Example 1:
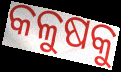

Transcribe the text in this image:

କଳୁଷକୁ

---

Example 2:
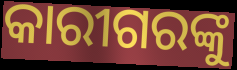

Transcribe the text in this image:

କାରୀଗରଙ୍କୁ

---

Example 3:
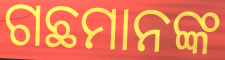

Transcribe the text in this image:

ଗଛମାନଙ୍କ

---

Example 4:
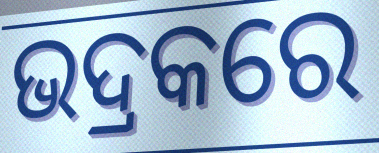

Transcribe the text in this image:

ଭଦ୍ରକରେ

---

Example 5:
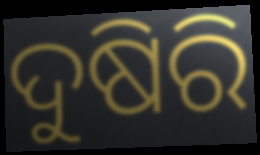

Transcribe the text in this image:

ଦୁଷିରି